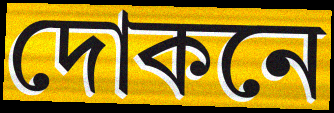
দোকনে